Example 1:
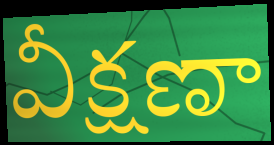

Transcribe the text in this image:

వీక్షణా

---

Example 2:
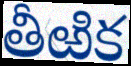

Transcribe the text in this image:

తీఱిక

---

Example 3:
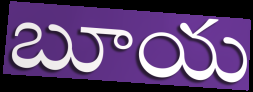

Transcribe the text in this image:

బూయ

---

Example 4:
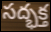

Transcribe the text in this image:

సద్భక్త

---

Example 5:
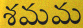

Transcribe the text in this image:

శమమ